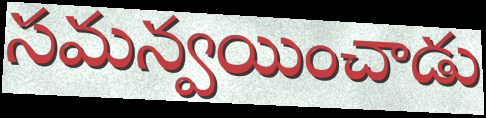
సమన్వయించాడు